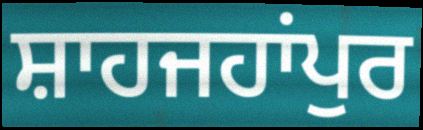
ਸ਼ਾਹਜਹਾਂਪੁਰ